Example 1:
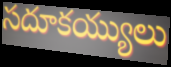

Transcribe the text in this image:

సదూకయ్యులు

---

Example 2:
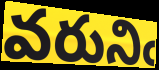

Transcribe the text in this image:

వరునిఁ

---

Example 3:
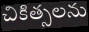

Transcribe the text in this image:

చికిత్సలను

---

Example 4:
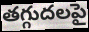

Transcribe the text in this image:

తగ్గుదలపై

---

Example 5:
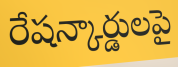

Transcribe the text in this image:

రేషన్కార్డులపై